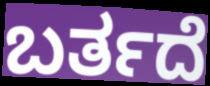
ಬರ್ತದೆ